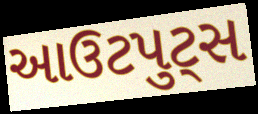
આઉટપુટ્સ